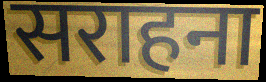
सराहना